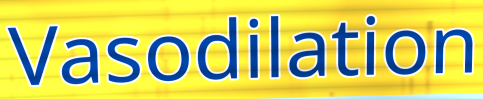
Vasodilation